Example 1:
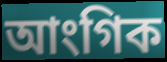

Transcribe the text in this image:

আংগিক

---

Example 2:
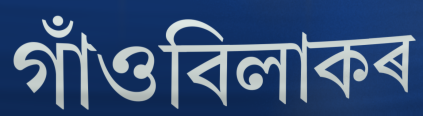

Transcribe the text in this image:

গাঁওবিলাকৰ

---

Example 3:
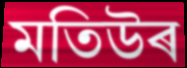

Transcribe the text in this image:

মতিউৰ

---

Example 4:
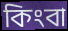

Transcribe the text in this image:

কিংবা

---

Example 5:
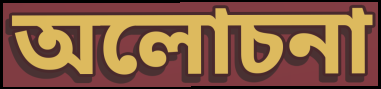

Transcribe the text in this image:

অলোচনা